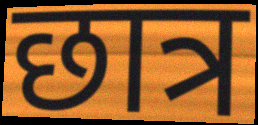
छात्र